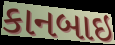
કાનબાઇ